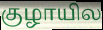
குழாயில